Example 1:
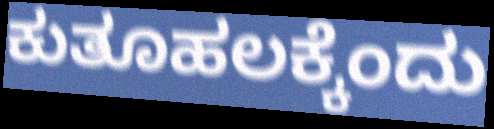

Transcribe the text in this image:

ಕುತೂಹಲಕ್ಕೆಂದು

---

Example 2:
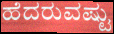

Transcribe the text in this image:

ಹೆದರುವಷ್ಟು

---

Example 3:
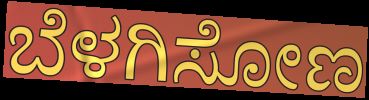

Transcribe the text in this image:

ಬೆಳಗಿಸೋಣ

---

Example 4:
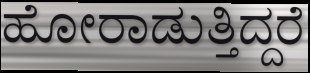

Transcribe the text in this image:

ಹೋರಾಡುತ್ತಿದ್ದರೆ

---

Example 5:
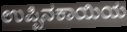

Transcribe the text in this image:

ಉಪ್ಪಿನಕಾಯಿಯ